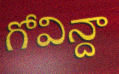
గోవిన్దా